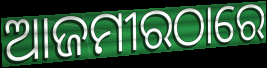
ଆଜମୀରଠାରେ